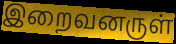
இறைவனருள்